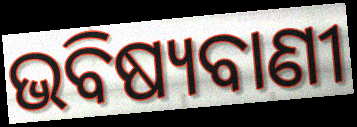
ଭବିଷ୍ଯବାଣୀ